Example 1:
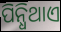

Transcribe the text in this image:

ପିନ୍ଧିଥାଏ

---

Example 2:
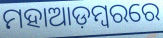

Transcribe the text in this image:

ମହାଆଡ଼ମ୍ୱରରେ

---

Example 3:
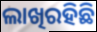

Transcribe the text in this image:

ଲାଖିରହିଛି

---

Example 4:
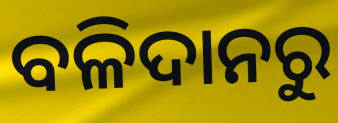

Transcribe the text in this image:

ବଳିଦାନରୁ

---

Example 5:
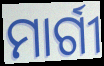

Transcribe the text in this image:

ମାର୍ଗୀ